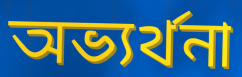
অভ্যর্থনা